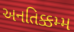
અનતિક્કમ્મ